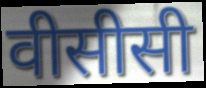
वीसीसी